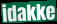
idakke